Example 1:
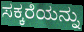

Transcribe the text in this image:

ಸಕ್ಕರೆಯನ್ನು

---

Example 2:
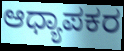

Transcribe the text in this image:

ಆಧ್ಯಾಪಕರ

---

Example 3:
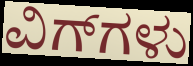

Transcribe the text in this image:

ವಿಗ್‌ಗಳು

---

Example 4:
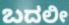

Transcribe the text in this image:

ಬದಲೀ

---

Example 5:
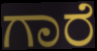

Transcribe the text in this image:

ಗಾರೆ